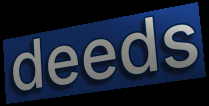
deeds